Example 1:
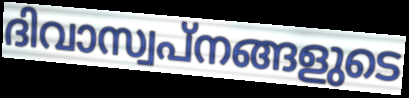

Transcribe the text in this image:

ദിവാസ്വപ്നങ്ങളുടെ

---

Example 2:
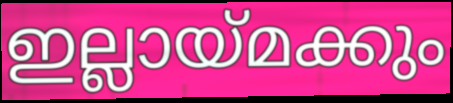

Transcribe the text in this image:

ഇല്ലായ്മക്കും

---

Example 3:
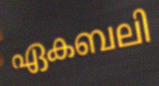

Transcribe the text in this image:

ഏകബലി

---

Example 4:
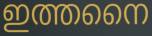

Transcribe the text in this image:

ഇത്തനൈ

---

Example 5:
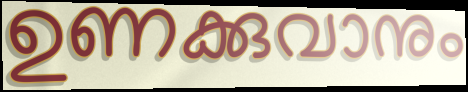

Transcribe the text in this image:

ഉണക്കുവാനും